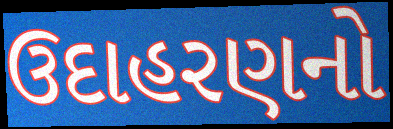
ઉદાહરણનો